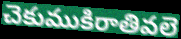
చెకుముకిరాతివలె